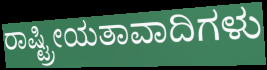
ರಾಷ್ಟ್ರೀಯತಾವಾದಿಗಳು